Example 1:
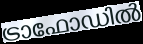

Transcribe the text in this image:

ട്രാഫോഡിൽ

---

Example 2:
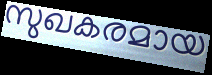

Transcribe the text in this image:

സുഖകരമായ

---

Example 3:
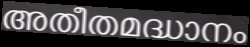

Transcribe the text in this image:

അതീതമദ്ധാനം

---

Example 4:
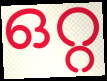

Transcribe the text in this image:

ഒറ്റ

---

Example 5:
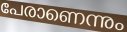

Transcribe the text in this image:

പേരാണെന്നും